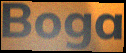
Boga